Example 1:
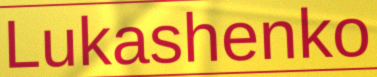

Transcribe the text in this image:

Lukashenko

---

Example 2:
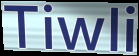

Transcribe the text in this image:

Tiwli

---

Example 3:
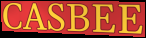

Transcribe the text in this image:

CASBEE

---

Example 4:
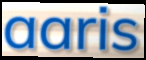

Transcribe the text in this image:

aaris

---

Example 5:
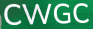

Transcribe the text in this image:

CWGC